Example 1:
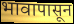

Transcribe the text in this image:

भावापासून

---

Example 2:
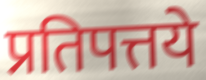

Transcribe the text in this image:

प्रतिपत्तये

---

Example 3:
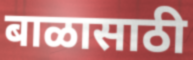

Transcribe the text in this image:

बाळासाठी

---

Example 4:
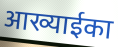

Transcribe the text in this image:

आख्याईका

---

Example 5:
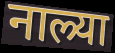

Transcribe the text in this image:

नाल्या